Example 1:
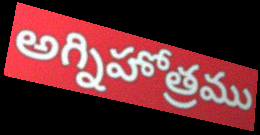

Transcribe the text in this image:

అగ్నిహోత్రము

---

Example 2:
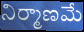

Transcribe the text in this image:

నిర్మాణమే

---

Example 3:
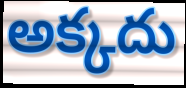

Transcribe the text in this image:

అక్కదు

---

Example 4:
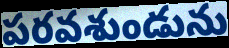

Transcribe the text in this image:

పరవశుండును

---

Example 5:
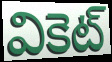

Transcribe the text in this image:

వికెట్